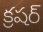
క్రషర్